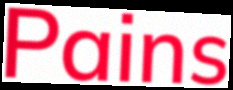
Pains